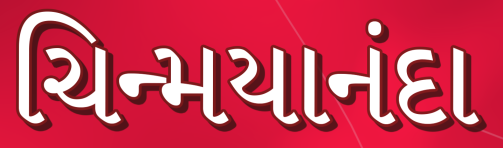
ચિન્મયાનંદા